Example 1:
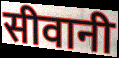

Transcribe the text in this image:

सीवानी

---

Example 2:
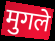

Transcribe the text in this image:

मुगले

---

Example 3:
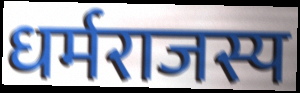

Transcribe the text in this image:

धर्मराजस्य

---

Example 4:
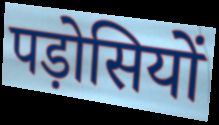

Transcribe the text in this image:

पड़ोसियों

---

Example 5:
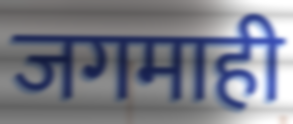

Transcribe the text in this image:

जगमाही